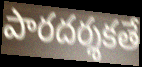
పారదర్శకతే